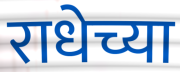
राधेच्या